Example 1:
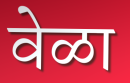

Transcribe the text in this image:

वेळा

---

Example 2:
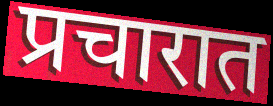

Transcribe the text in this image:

प्रचारात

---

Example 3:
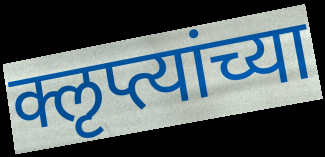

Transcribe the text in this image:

क्लृप्त्यांच्या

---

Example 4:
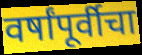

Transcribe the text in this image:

वर्षांपूर्वीचा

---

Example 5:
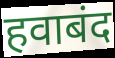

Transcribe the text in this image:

हवाबंद